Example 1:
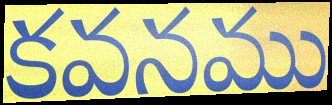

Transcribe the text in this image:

కవనము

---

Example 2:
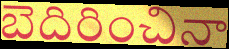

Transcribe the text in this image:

బెదిరించినా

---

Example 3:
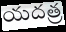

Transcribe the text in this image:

యదత్ర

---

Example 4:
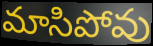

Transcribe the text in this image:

మాసిపోవు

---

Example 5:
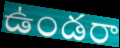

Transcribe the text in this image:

ఉండరా